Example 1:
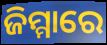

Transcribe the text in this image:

ଜିମ୍ମାରେ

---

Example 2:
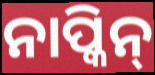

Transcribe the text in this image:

ନାପ୍କିନ୍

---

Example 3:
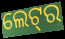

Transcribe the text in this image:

ଲେଟ୍‌ର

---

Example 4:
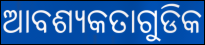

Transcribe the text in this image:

ଆବଶ୍ୟକତାଗୁଡିକ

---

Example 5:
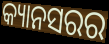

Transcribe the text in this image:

କ୍ୟାନସରର